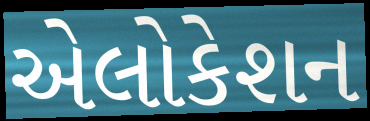
એલોકેશન